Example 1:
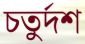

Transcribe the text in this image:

চতুর্দশ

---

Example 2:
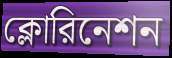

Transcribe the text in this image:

ক্লোরিনেশন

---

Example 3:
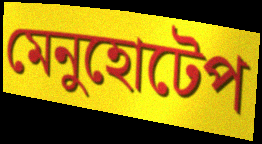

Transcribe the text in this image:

মেনুহোটেপ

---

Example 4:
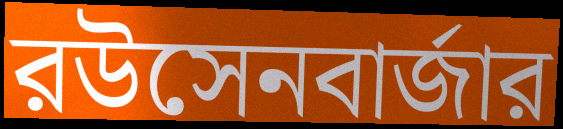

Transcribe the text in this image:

রউসেনবার্জার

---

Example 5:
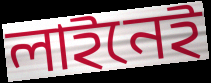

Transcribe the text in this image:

লাইনেই